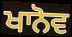
ਖਾਨੋਵ